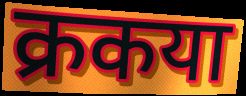
क्रकया